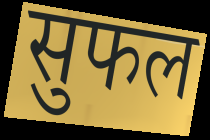
सुफल